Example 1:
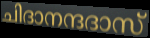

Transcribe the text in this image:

ചിദാനന്ദദാസ്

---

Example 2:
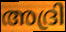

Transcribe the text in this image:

അദ്രി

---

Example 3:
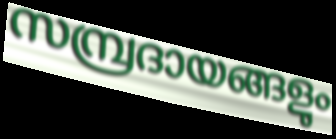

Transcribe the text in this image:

സമ്പ്രദായങ്ങളും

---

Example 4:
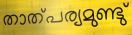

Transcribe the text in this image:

താത്പര്യമുണ്ടു്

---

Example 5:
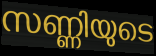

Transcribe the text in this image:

സണ്ണിയുടെ